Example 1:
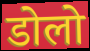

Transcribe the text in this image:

डोलो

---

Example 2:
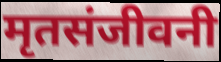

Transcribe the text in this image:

मृतसंजीवनी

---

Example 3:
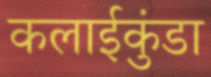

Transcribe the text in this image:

कलाईकुंडा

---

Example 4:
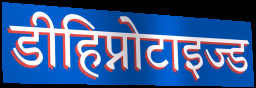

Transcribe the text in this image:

डीहिप्नोटाइज्ड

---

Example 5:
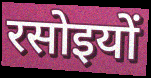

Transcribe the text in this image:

रसोइयों